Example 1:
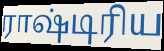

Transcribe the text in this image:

ராஷ்டிரிய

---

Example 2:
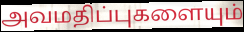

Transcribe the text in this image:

அவமதிப்புகளையும்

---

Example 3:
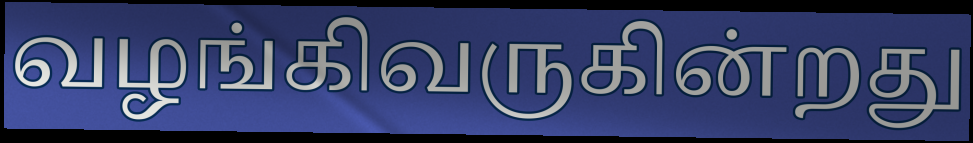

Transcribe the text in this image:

வழங்கிவருகின்றது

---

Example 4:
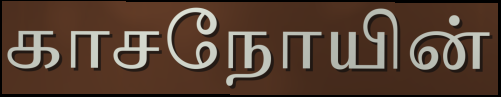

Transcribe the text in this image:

காசநோயின்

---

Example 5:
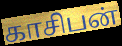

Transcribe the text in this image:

காசிபன்